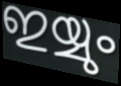
ഇയ്യും